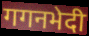
गगनभेदी